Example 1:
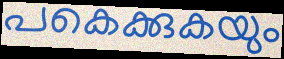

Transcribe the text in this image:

പകെക്കുകയും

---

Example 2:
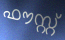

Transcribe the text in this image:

ഫൗസ്റ്റ്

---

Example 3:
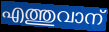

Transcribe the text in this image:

എത്തുവാന്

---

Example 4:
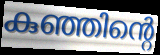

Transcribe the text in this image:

കുഞ്ഞിന്റെ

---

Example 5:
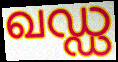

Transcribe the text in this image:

ഖഡ്ഡ